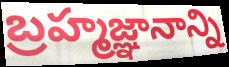
బ్రహ్మజ్ఞానాన్ని